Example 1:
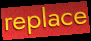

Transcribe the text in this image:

replace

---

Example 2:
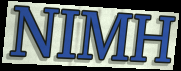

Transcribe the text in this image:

NIMH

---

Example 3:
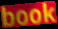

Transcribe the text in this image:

book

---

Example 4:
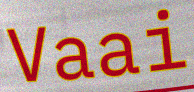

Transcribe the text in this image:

Vaai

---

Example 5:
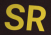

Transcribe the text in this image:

SR